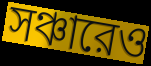
সঞ্চারেও